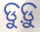
ଡୁଡ଼ୁ